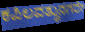
ಕಪಿಲವತ್ಥುನಗರೇ